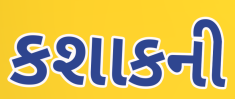
કશાકની